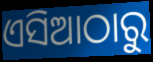
ଏସିଆଠାରୁ